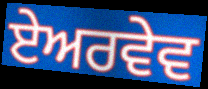
ਏਅਰਵੇਵ